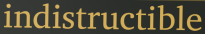
indistructible